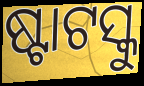
ଷ୍ଟାଟସ୍କୁ